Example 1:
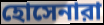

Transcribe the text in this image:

হোসেনারা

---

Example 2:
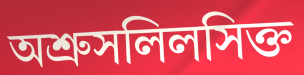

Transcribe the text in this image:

অশ্রুসলিলসিক্ত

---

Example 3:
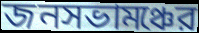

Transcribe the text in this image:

জনসভামঞ্চের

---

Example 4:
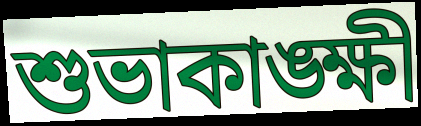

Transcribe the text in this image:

শুভাকাঙ্ক্ষী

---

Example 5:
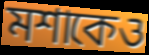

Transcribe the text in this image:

মশাকেও